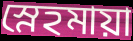
স্নেহমায়া